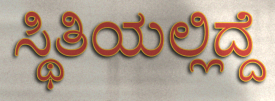
ಸ್ಥಿತಿಯಲ್ಲಿದ್ದೆ